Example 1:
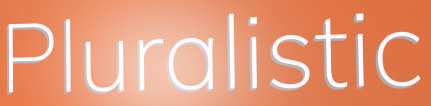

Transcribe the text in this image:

Pluralistic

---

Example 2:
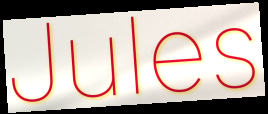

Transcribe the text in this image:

Jules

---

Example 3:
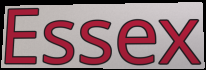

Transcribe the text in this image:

Essex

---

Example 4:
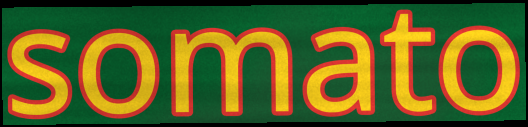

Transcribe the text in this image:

somato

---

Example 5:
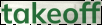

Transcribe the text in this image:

takeoff